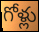
గోళ్లు